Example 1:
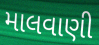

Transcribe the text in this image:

માલવાણી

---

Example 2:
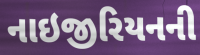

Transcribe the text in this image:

નાઇજીરિયનની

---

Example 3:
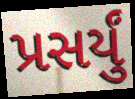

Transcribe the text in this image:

પ્રસર્યું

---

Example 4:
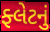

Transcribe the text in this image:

ફ્લેટનું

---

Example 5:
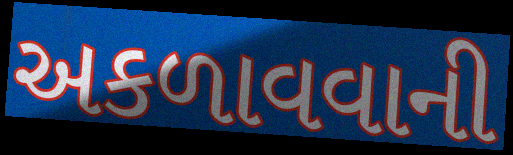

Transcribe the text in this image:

અકળાવવાની